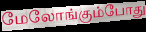
மேலோங்கும்போது